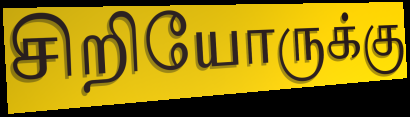
சிறியோருக்கு